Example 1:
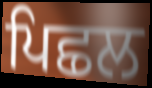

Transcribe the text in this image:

ਪਿਛਲ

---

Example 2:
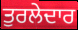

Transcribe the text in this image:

ਤੁਰਲੇਦਾਰ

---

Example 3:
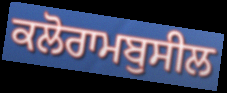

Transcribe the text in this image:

ਕਲੋਰਾਮਬੁਸੀਲ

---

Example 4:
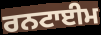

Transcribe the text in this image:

ਰਨਟਾਈਮ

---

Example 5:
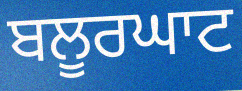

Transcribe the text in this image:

ਬਲੂਰਘਾਟ